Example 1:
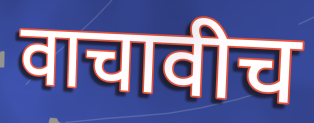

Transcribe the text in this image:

वाचावीच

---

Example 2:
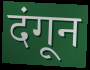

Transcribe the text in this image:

दंगून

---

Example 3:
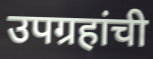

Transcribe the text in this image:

उपग्रहांची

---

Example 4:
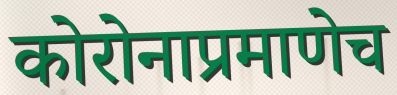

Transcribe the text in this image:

कोरोनाप्रमाणेच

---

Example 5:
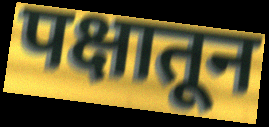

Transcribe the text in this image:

पक्षातून